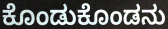
ಕೊಂಡುಕೊಂಡನು